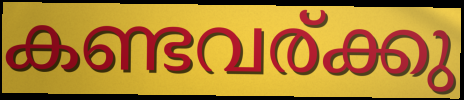
കണ്ടവര്ക്കു